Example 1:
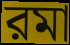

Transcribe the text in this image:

রমা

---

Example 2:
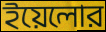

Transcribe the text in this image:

ইয়েলোর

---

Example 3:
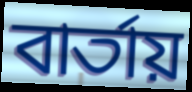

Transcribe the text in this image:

বার্তায়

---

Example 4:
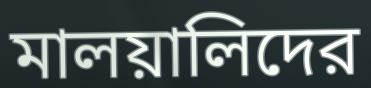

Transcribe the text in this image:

মালয়ালিদের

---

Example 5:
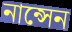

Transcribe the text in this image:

নান্সেন